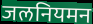
जलनियमन